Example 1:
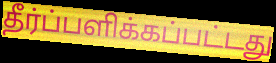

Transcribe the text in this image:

தீர்ப்பளிக்கப்பட்டது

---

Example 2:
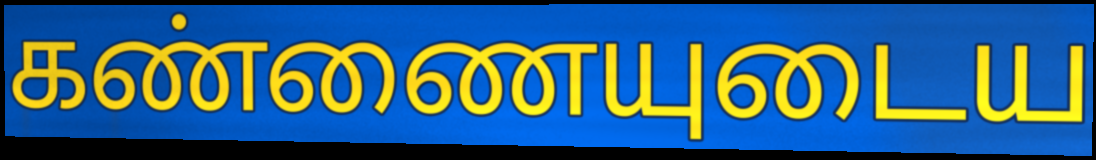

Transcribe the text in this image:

கண்ணையுடைய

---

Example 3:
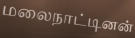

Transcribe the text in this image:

மலைநாட்டினன்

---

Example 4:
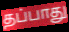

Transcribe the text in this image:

தப்பாது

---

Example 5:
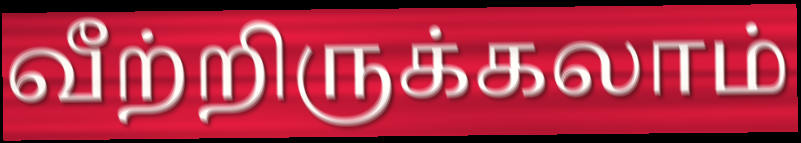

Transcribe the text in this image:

வீற்றிருக்கலாம்